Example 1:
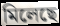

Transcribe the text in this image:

মিলেছে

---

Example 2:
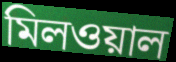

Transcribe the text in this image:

মিলওয়াল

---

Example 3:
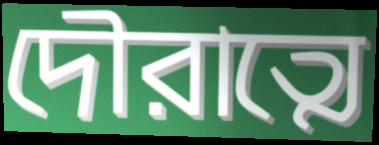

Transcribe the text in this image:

দৌরাত্মে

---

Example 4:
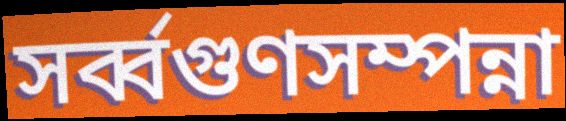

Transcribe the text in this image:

সর্ব্বগুণসম্পন্না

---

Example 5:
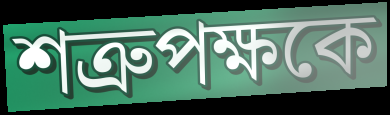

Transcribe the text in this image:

শত্রুপক্ষকে